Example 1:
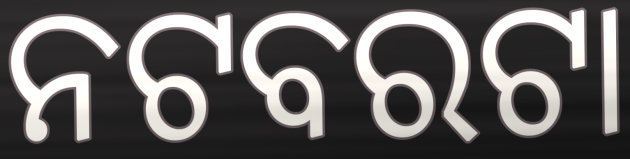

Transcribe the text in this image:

ନଟବରଟା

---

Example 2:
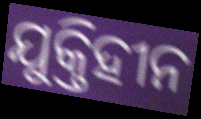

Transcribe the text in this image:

ଯୁକ୍ତିହୀନ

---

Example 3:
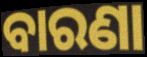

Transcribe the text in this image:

ବାରଣା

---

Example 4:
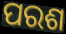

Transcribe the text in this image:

ପରଶ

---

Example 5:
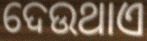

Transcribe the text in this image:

ଦେଉଥାଏ